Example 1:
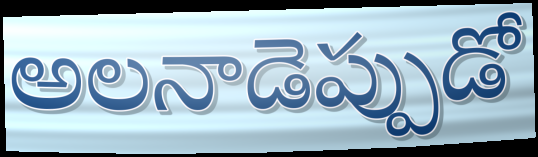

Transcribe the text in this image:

అలనాడెప్పుడో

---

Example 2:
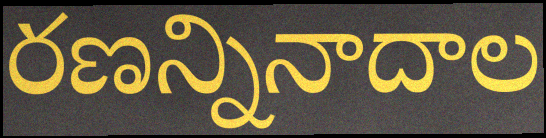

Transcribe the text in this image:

రణన్నినాదాల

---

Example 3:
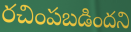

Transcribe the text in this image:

రచింపబడిందని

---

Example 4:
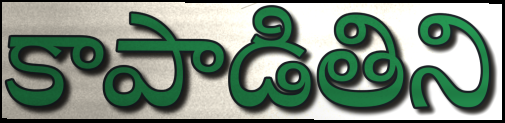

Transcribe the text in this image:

కాపాడితిని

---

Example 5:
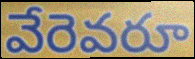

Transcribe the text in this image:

వేరెవరూ